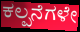
ಕಲ್ಪನೆಗಳೇ